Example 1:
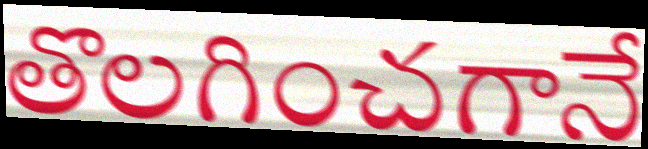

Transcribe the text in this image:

తొలగించగానే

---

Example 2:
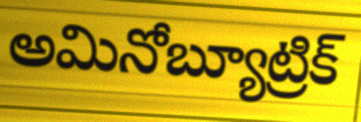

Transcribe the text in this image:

అమినోబ్యూట్రిక్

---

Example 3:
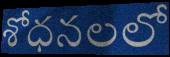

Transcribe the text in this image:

శోధనలలో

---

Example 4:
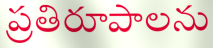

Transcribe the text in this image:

ప్రతిరూపాలను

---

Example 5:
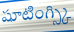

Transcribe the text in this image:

షూటింగ్స్కి